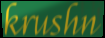
krushn